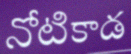
నోటికాడ